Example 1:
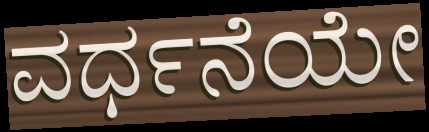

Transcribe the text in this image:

ವರ್ಧನೆಯೇ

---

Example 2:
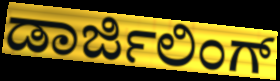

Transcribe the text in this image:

ಡಾರ್ಜಿಲಿಂಗ್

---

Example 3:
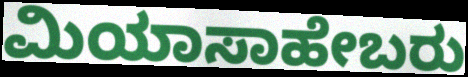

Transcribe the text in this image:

ಮಿಯಾಸಾಹೇಬರು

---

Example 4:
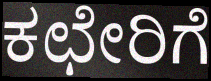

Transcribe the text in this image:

ಕಛೇರಿಗೆ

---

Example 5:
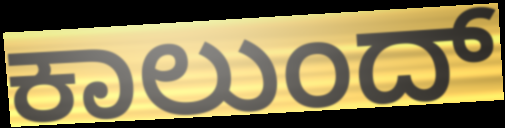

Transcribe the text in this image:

ಕಾಲುಂದ್